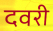
दवरी